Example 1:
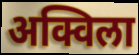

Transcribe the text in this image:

अक्विला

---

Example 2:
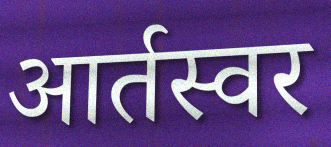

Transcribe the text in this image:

आर्तस्वर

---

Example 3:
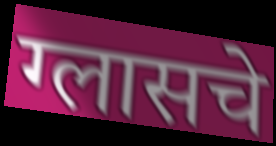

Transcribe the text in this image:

ग्लासचे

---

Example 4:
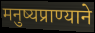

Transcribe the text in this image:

मनुष्यप्राण्याने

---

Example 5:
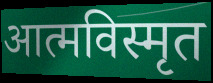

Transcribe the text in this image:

आत्मविस्मृत